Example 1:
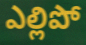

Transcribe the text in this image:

ఎల్లిపో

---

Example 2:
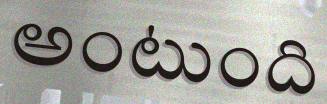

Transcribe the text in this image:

అంటుంది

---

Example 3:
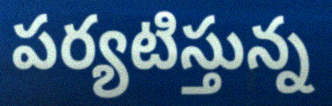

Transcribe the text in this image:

పర్యటిస్తున్న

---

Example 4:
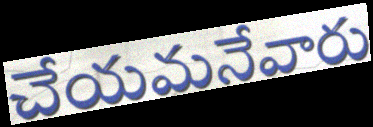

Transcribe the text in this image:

చేయమనేవారు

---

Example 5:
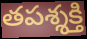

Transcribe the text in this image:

తపశ్శక్తి